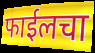
फाईलचा